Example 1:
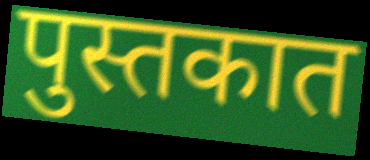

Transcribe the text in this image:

पुस्तकात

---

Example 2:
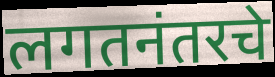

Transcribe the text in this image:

लगतनंतरचे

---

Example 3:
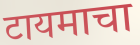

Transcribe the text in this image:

टायमाचा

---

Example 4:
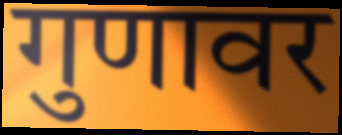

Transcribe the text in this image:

गुणावर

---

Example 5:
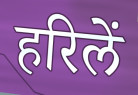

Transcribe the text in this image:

हरिलें